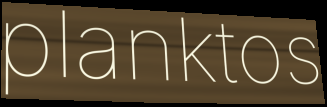
planktos